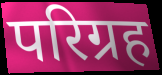
परिग्रह